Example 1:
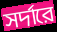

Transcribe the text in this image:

সর্দারে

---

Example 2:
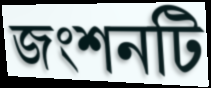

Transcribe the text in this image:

জংশনটি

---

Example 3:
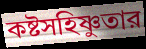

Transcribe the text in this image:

কষ্টসহিষ্ণুতার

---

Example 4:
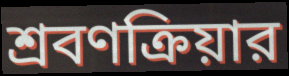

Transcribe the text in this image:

শ্রবণক্রিয়ার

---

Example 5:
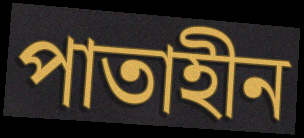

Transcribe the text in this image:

পাতাহীন